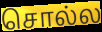
சொல்ல